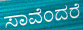
ಸಾವೆಂದರೆ